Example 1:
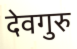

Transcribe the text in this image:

देवगुरु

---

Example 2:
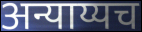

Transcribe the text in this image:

अन्याय्यच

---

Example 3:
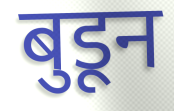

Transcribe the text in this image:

बुडून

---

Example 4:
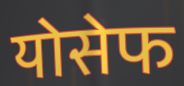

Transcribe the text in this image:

योसेफ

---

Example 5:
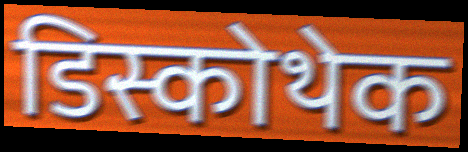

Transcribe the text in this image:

डिस्कोथेक